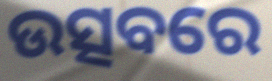
ଉତ୍ସବରେ